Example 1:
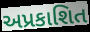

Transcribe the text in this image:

અપ્રકાશિત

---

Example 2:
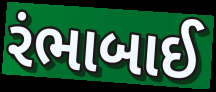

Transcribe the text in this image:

રંભાબાઈ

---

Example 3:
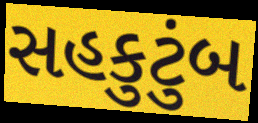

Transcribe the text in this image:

સહકુટુંબ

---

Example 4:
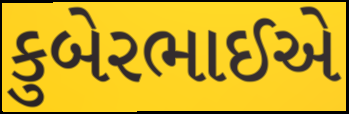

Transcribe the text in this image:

કુબેરભાઈએ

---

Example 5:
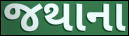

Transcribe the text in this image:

જથાના